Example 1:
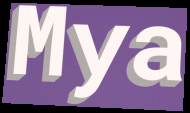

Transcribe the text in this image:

Mya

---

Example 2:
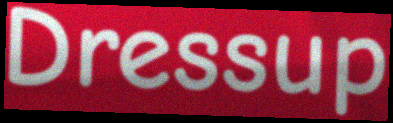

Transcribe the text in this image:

Dressup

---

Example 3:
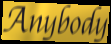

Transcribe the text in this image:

Anybody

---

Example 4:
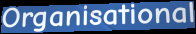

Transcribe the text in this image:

Organisational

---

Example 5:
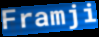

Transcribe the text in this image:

Framji